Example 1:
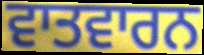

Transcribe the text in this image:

ਵਾਤਵਾਰਨ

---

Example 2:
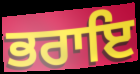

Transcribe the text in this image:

ਭਰਾਇ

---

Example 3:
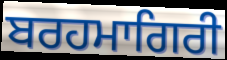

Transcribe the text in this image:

ਬਰਹਮਾਗਿਰੀ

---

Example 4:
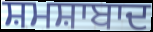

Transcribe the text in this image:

ਸ਼ਮਸ਼ਾਬਾਦ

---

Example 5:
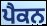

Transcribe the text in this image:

ਪੈਕਨ